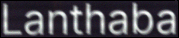
Lanthaba